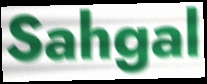
Sahgal